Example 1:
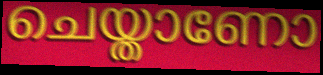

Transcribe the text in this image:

ചെയ്താണോ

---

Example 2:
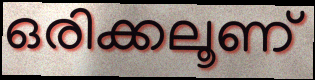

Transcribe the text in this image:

ഒരിക്കലൂണ്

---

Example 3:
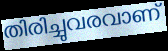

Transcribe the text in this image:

തിരിച്ചുവരവാണ്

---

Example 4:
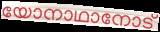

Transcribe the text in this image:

യോനാഥാനോട്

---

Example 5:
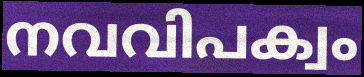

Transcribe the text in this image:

നവവിപക്വം